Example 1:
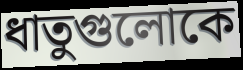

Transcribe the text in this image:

ধাতুগুলোকে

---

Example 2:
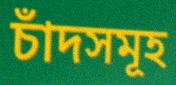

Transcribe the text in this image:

চাঁদসমূহ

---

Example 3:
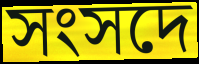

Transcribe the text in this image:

সংসদে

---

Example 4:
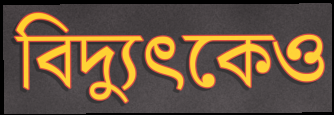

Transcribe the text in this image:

বিদ্যুৎকেও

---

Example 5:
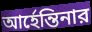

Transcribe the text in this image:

আর্হেন্তিনার